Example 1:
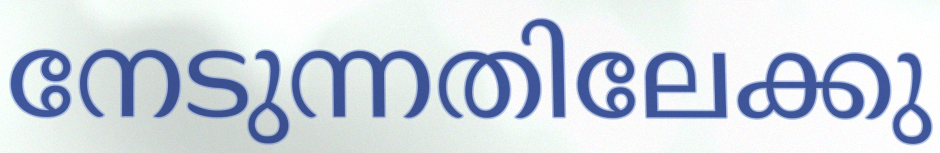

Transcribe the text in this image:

നേടുന്നതിലേക്കു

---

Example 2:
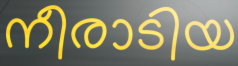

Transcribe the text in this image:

നീരാടിയ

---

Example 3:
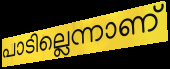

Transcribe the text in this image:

പാടില്ലെന്നാണ്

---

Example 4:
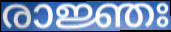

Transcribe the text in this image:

രാജ്ഞഃ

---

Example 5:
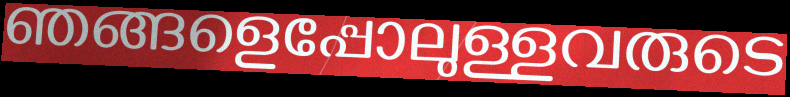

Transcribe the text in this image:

ഞങ്ങളെപ്പോലുള്ളവരുടെ